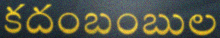
కదంబంబుల